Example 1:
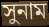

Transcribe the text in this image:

সুনাম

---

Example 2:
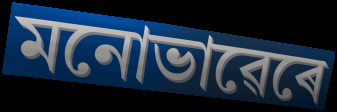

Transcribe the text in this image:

মনোভাৱেৰে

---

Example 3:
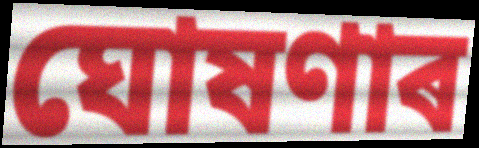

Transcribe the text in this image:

ঘোষণাৰ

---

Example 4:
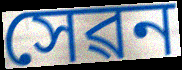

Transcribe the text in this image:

সেৱন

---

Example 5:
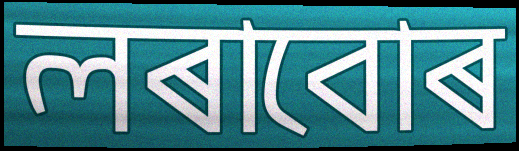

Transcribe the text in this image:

লৰাবোৰ